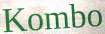
Kombo